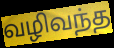
வழிவந்த